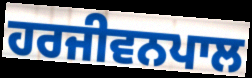
ਹਰਜੀਵਨਪਾਲ